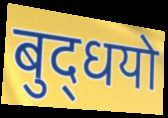
बुद्धयो